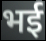
भई